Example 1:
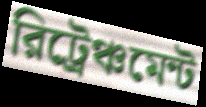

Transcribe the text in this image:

রিট্রেঞ্চমেন্ট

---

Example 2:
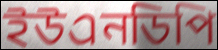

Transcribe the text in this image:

ইউএনডিপি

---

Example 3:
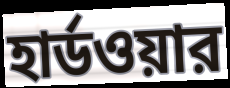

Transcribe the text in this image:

হার্ডওয়ার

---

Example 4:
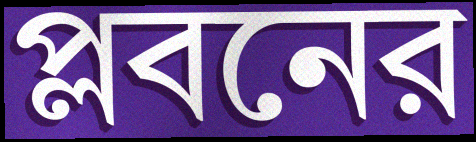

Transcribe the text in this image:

প্লবনের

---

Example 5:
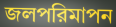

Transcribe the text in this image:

জলপরিমাপন